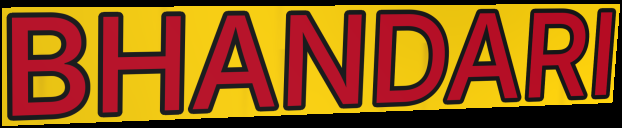
BHANDARI